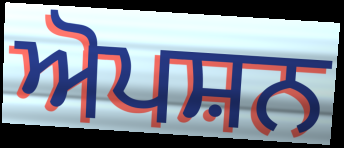
ਅੋਪਸ਼ਨ